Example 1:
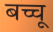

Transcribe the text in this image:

बच्चू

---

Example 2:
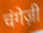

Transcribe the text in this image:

चंगेज़ी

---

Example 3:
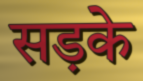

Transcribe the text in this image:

सड़के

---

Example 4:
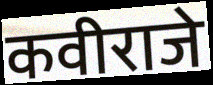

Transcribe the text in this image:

कवीराजे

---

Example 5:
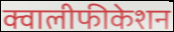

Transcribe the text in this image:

क्वालीफीकेशन